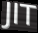
JIT